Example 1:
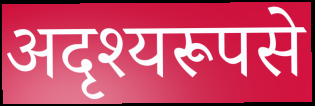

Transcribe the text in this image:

अदृश्यरूपसे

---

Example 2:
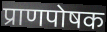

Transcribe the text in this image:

प्राणपोषक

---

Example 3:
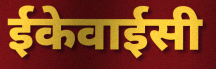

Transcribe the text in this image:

ईकेवाईसी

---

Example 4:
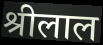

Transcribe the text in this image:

श्रीलाल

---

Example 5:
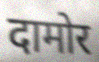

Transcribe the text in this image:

दामोर